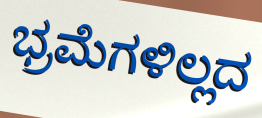
ಭ್ರಮೆಗಳಿಲ್ಲದ